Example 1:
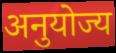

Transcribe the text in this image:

अनुयोज्य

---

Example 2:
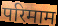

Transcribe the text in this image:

परिमाम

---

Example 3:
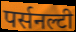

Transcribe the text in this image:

पर्सनल्टी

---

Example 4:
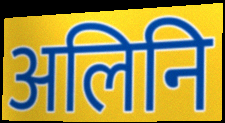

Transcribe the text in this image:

अलिनि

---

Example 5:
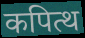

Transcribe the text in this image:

कपित्थ